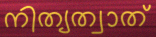
നിത്യത്വാത്